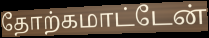
தோற்கமாட்டேன்